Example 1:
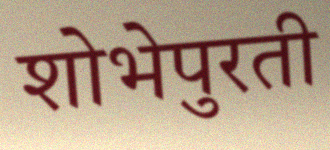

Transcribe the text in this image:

शोभेपुरती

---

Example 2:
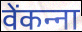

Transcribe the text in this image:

वेंकन्ना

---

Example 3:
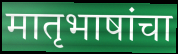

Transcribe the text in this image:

मातृभाषांचा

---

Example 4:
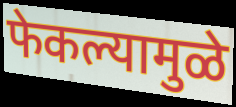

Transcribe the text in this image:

फेकल्यामुळे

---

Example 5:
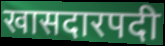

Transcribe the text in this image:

खासदारपदी